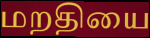
மறதியை